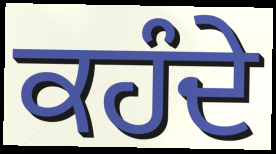
ਕਹੰਦੇ